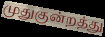
முதுகுன்றத்து